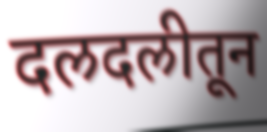
दलदलीतून